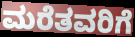
ಮರೆತವರಿಗೆ